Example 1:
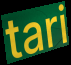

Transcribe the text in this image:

tari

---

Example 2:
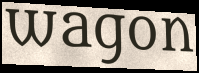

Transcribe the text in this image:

wagon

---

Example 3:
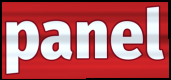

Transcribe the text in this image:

panel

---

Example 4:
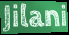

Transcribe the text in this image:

Jilani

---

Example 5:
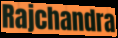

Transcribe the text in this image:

Rajchandra